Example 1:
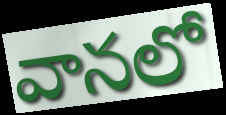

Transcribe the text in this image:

వానలో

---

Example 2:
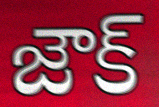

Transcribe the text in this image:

జౌక్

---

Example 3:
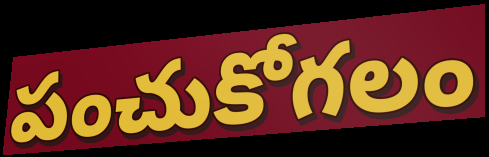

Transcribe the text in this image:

పంచుకోగలం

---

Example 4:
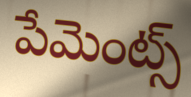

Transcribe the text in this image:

పేమెంట్స్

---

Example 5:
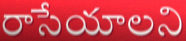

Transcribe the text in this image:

రాసేయాలని